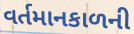
વર્તમાનકાળની